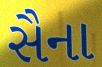
સૈના